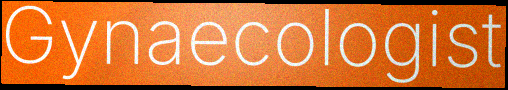
Gynaecologist